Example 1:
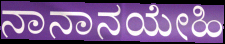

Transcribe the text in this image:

ನಾನಾನಯೇಹಿ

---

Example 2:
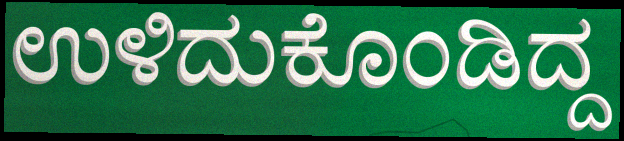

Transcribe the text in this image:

ಉಳಿದುಕೊಂಡಿದ್ದ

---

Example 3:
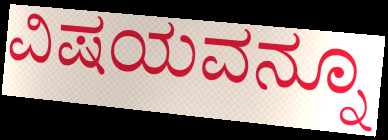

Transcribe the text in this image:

ವಿಷಯವನ್ನೂ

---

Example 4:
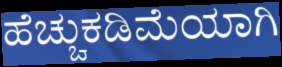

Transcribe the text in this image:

ಹೆಚ್ಚುಕಡಿಮೆಯಾಗಿ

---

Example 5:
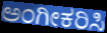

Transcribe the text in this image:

ಅಂಗೀಕರಿಸಿ